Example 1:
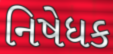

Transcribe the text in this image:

નિષેધક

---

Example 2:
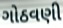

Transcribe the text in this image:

ગોઠવણી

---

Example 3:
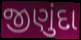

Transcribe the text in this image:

જીણુંદા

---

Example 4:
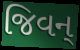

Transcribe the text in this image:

જિવન્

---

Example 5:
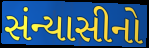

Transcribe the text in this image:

સંન્યાસીનો